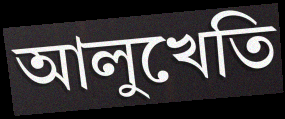
আলুখেতি